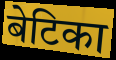
बेटिका